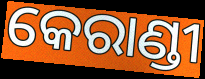
କେରାଣ୍ଡୀ